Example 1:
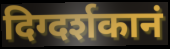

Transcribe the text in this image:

दिग्दर्शकानं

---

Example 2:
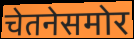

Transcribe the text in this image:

चेतनेसमोर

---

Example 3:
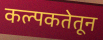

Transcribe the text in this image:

कल्पकतेतून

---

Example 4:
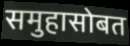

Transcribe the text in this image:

समुहासोबत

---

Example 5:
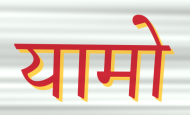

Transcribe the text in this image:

यामो